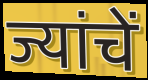
ज्यांचें